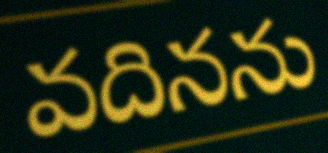
వదినను